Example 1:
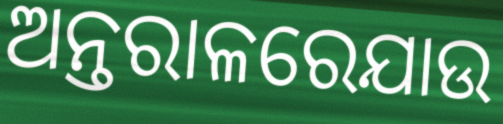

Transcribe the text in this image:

ଅନ୍ତରାଳରେଯାଉ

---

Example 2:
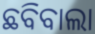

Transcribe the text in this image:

ଛବିବାଲା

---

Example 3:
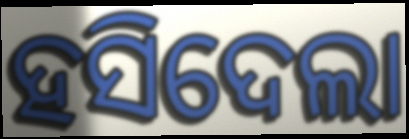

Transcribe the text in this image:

ହସିଦେଲା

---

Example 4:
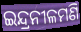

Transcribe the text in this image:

ଇନ୍ଦ୍ରନୀଳମଣି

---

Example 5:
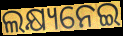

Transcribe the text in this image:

ଲକ୍ଷ୍ୟନେଇ